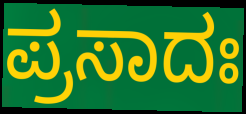
ಪ್ರಸಾದಃ